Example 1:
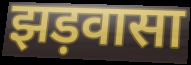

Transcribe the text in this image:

झड़वासा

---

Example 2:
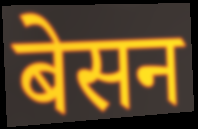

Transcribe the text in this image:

बेसन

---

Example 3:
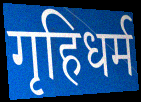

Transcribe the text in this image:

गृहिधर्म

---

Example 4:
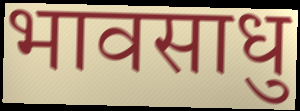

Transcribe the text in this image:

भावसाधु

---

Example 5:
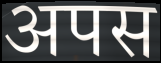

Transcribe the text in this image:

अपस